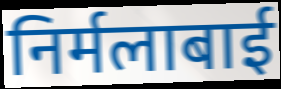
निर्मलाबाई